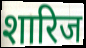
शारिज